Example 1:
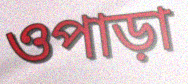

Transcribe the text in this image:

ওপাড়া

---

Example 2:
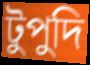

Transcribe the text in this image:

টুপুদি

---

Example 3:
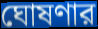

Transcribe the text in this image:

ঘোষণার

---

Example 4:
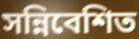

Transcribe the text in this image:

সন্নিবেশিত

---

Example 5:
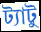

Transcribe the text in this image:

ট্যাটু